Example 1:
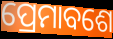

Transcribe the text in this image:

ପ୍ରେମାବଶେ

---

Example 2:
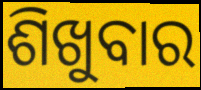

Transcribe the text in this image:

ଶିଖୁବାର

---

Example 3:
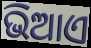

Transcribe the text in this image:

ଭିଆଏ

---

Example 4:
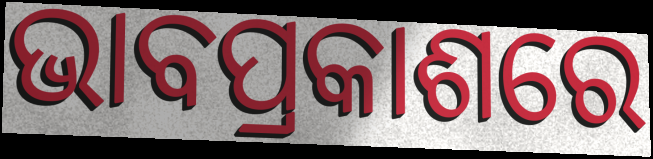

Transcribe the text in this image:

ଭାବପ୍ରକାଶରେ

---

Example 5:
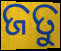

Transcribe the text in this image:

ଜତୁ